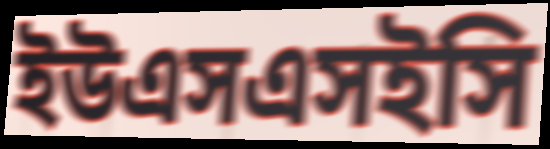
ইউএসএসইসি